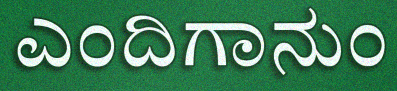
ಎಂದಿಗಾನುಂ